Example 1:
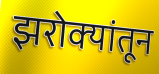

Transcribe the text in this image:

झरोक्यांतून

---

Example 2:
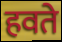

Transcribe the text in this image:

हवते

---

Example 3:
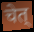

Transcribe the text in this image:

चेत्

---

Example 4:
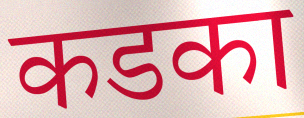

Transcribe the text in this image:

कडका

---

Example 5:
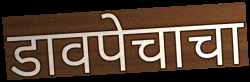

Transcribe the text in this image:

डावपेचाचा